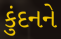
કુંદનને